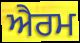
ਐਰਮ